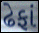
ઢેફાં